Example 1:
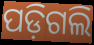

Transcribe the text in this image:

ପଡ଼ିଗଲି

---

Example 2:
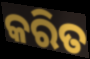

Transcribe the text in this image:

କରିତ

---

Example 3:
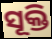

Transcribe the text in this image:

ସୂକ୍ତି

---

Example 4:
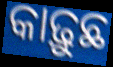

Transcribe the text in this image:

କାଢ଼ୁଛ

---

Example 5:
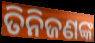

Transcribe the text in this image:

ତିନିଜଣଙ୍କ